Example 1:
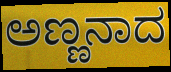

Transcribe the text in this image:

ಅಣ್ಣನಾದ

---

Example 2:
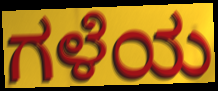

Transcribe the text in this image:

ಗಳೆಯ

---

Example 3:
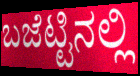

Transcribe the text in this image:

ಬಜೆಟ್ಟಿನಲ್ಲಿ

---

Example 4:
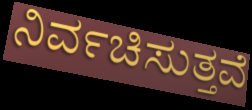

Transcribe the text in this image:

ನಿರ್ವಚಿಸುತ್ತವೆ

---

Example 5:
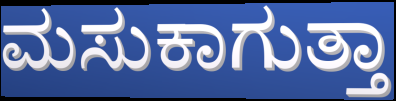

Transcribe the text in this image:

ಮಸುಕಾಗುತ್ತಾ